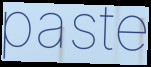
paste